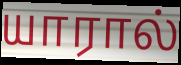
யாரால்